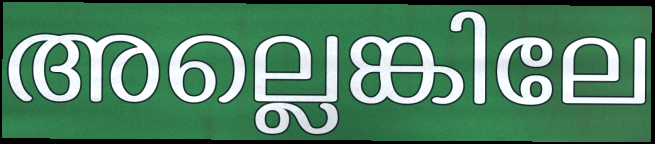
അല്ലെങ്കിലേ